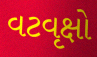
વટવૃક્ષો